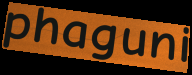
phaguni